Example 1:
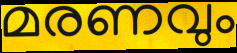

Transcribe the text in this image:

മരണവും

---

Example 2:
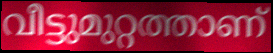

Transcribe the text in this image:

വീട്ടുമുറ്റത്താണ്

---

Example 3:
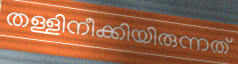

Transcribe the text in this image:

തള്ളിനീക്കിയിരുന്നത്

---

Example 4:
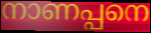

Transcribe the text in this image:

നാണപ്പനെ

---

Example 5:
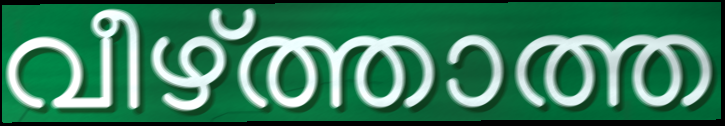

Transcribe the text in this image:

വീഴ്ത്താത്ത